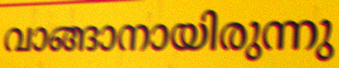
വാങ്ങാനായിരുന്നു